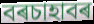
বৰচাহাবৰ